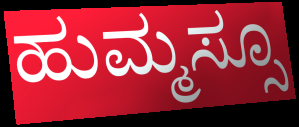
ಹುಮ್ಮಸ್ಸೂ